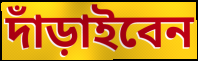
দাঁড়াইবেন